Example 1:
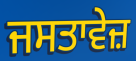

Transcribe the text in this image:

ਜਸਤਾਵੇਜ਼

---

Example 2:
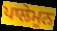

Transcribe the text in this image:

ਪਾਲੇਮੂਨ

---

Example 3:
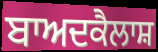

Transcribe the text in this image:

ਬਾਅਦਕੈਲਾਸ਼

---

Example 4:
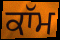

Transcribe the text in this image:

ਕਾੱਮ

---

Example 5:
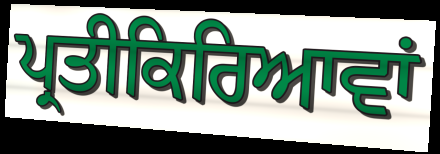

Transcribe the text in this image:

ਪ੍ਰਤੀਕਿਰਿਆਵਾਂ